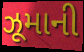
ઝૂમાની